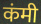
कंमी